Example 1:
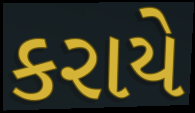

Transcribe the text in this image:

કરાયે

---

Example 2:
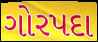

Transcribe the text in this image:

ગોરપદા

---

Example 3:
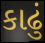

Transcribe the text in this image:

કાઢું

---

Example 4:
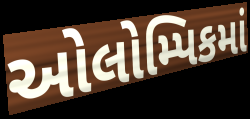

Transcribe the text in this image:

ઓલોમ્પિકમાં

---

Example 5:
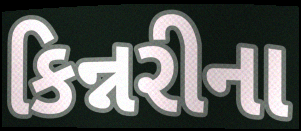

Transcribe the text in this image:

કિન્નરીના